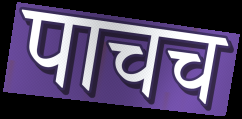
पाचच